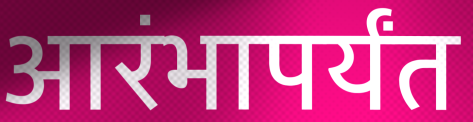
आरंभापर्यंत